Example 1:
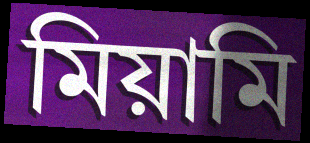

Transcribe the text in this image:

মিয়ামি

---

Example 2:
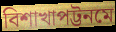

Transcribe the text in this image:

বিশাখাপট্টনমে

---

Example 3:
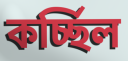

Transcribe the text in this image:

কর্চ্ছিল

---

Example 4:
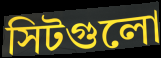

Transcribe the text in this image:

সিটগুলো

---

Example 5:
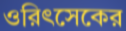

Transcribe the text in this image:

ওরিৎসেকের